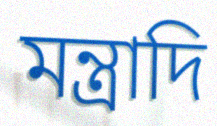
মন্ত্রাদি